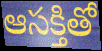
ఆసక్తితో